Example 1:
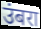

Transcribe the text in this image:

उंबरा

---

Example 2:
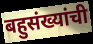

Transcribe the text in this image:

बहुसंख्यांची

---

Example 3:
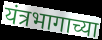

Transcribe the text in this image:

यंत्रभागाच्या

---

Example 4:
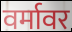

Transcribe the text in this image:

वर्मावर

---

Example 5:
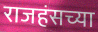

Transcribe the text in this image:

राजहंसच्या